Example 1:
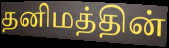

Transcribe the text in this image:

தனிமத்தின்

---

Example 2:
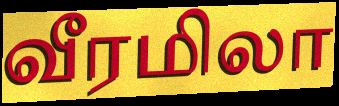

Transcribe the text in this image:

வீரமிலா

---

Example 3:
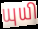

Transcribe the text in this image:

யுயி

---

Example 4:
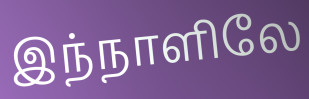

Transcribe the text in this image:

இந்நாளிலே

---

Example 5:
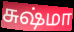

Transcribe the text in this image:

சுஷ்மா